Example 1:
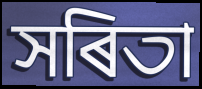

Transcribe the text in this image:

সৰিতা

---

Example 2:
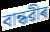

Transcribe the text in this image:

বান্ধৱীৰ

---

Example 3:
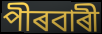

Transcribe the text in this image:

পীৰবাৰী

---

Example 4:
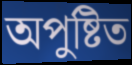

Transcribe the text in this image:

অপুষ্টিত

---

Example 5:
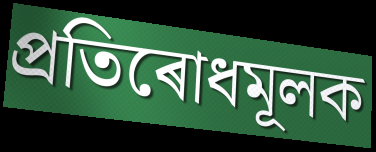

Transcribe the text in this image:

প্ৰতিৰোধমূলক